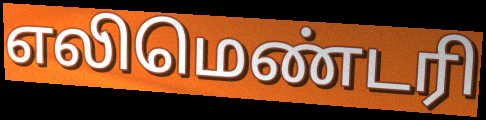
எலிமெண்டரி